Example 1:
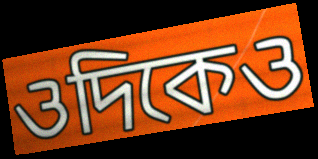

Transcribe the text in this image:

ওদিকেও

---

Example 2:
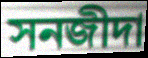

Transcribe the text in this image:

সনজীদা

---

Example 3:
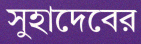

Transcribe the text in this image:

সুহাদেবের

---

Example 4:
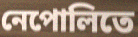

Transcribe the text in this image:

নেপোলিতে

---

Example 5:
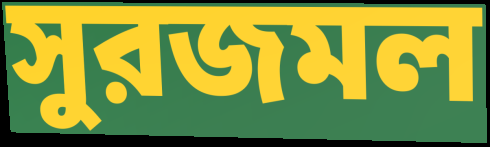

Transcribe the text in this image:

সুরজমল